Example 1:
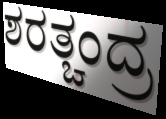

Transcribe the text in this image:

ಶರತ್ಚಂದ್ರ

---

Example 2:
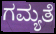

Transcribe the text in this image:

ಗಮ್ಯತೆ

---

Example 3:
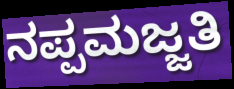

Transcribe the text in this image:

ನಪ್ಪಮಜ್ಜತಿ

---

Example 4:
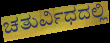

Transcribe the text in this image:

ಚತುರ್ವಿಧದಲ್ಲಿ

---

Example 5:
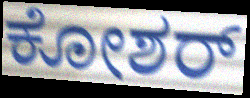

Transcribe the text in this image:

ಕೋಶರ್